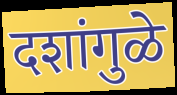
दशांगुळे